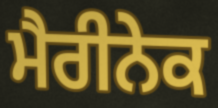
ਮੈਰੀਨੇਕ